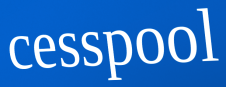
cesspool